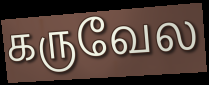
கருவேல